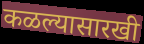
कळल्यासारखी